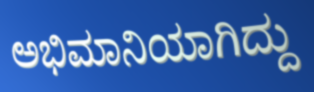
ಅಭಿಮಾನಿಯಾಗಿದ್ದು